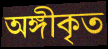
অঙ্গীকৃত